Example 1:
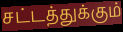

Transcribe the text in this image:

சட்டத்துக்கும்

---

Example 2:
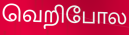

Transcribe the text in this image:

வெறிபோல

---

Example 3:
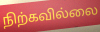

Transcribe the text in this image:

நிற்கவில்லை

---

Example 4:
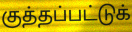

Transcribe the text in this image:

குத்தப்பட்டுக்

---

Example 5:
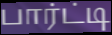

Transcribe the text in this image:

பார்ட்டி